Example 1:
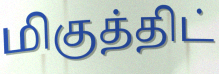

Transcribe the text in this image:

மிகுத்திட்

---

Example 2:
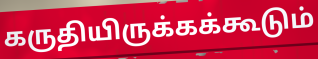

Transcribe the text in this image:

கருதியிருக்கக்கூடும்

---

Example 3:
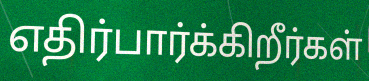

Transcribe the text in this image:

எதிர்பார்க்கிறீர்கள்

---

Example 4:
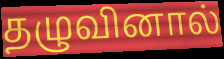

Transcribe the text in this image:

தழுவினால்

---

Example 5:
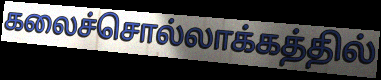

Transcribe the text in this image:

கலைச்சொல்லாக்கத்தில்